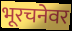
भूरचनेवर